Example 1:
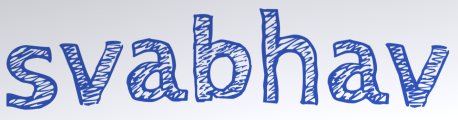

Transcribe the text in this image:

svabhav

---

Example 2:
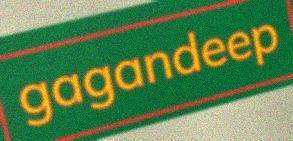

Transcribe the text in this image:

gagandeep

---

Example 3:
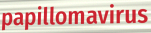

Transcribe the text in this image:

papillomavirus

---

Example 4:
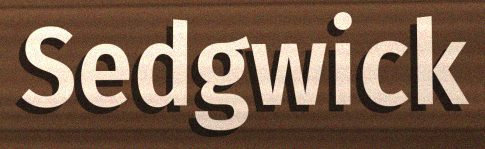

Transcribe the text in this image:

Sedgwick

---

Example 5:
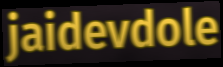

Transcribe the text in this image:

jaidevdole